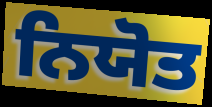
ਨਿਯੋਤ